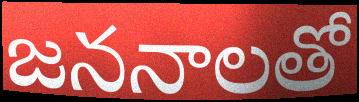
జననాలతో